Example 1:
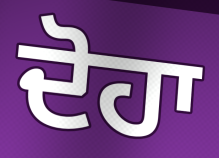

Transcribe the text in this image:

ਦੋਹਾ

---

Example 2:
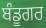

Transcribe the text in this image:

ਬੰਡੂਗਰ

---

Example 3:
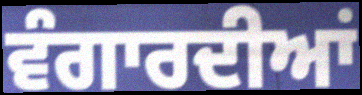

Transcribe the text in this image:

ਵੰਗਾਰਦੀਆਂ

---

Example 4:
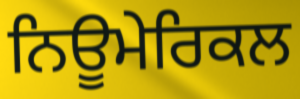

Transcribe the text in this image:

ਨਿਊਮੇਰਿਕਲ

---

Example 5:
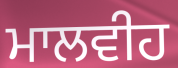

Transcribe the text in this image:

ਮਾਲਵੀਹ